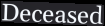
Deceased